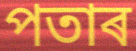
পতাৰ